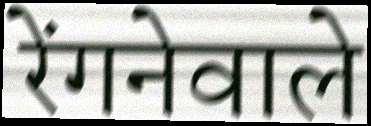
रेंगनेवाले